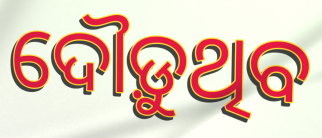
ଦୌଡ଼ୁଥିବ